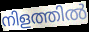
നിളത്തിൽ